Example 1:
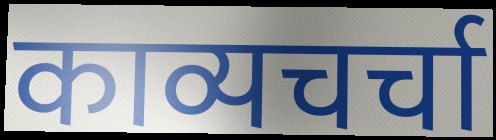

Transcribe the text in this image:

काव्यचर्चा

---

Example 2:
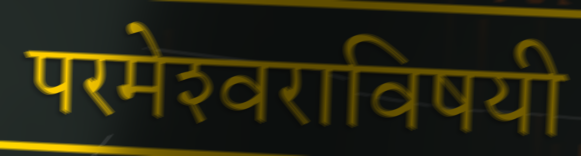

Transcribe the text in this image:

परमेश्वराविषयी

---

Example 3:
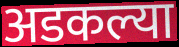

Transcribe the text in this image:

अडकल्या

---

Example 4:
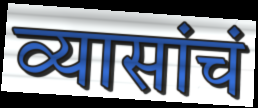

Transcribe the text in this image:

व्यासांचं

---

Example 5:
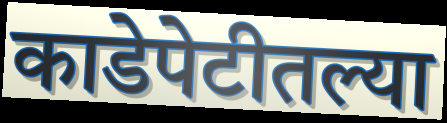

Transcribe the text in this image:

काडेपेटीतल्या